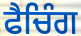
ਫੈਚਿੰਗ